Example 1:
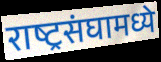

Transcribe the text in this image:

राष्ट्रसंघामध्ये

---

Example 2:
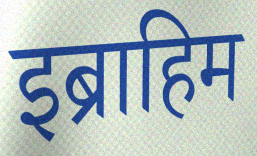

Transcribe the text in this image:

इब्राहिम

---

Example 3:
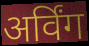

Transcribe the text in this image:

अर्विंग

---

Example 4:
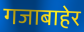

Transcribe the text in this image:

गजाबाहेर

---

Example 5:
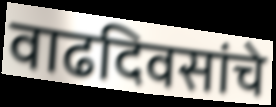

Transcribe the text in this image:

वाढदिवसांचे